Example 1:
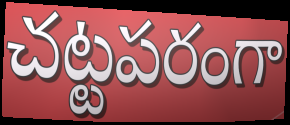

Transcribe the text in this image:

చట్టపరంగా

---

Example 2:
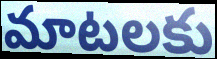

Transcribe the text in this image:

మాటలకు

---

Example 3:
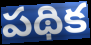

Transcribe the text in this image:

పథిక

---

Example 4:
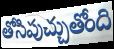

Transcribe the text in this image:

తోసిపుచ్చుతోంది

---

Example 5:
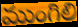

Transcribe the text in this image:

ముంగిలి